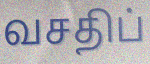
வசதிப்